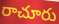
రాచూరు